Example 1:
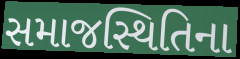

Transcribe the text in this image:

સમાજસ્થિતિના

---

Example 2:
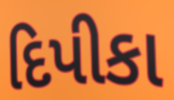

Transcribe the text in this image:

દિપીકા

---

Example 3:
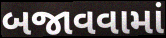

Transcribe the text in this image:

બજાવવામાં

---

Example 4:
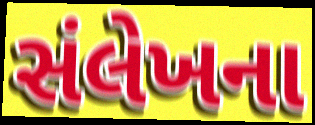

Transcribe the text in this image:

સંલેખના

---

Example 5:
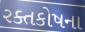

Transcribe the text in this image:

રક્તકોષના